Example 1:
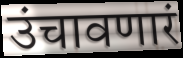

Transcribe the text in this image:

उंचावणारं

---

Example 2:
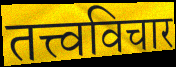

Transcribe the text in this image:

तत्त्वविचार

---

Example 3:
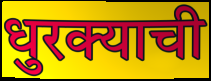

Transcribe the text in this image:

धुरक्याची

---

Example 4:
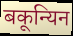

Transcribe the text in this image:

बकून्यिन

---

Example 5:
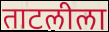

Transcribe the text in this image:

ताटलीला